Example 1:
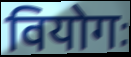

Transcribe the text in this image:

वियोगः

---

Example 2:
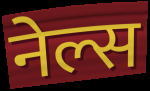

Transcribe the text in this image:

नेल्स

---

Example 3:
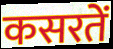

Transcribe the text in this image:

कसरतें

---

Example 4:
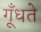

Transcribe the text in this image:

गूँधते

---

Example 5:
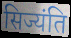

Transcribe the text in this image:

सिज्यंति